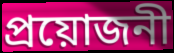
প্ৰয়োজনী